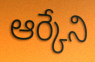
ఆర్కేని